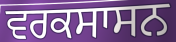
ਵਰਕਸਾਸਨ